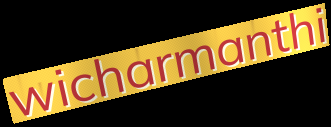
wicharmanthi